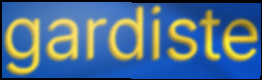
gardiste